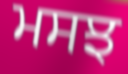
ਮਸਝ